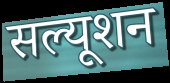
सल्यूशन